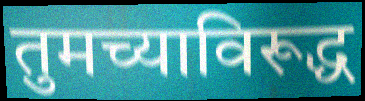
तुमच्याविरूद्ध